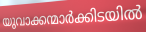
യുവാക്കന്മാർക്കിടയിൽ